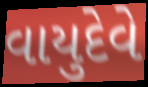
વાયુદેવે